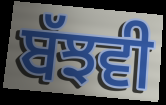
ਬੱਝਵੀ